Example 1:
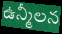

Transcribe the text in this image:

ఉన్మీలన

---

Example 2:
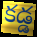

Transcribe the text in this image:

కడ్డ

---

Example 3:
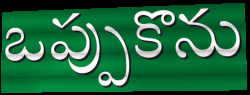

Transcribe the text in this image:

ఒప్పుకొను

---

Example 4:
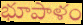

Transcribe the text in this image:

భూపాళం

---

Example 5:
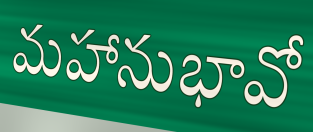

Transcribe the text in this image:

మహానుభావో